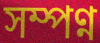
সম্পণ্ন